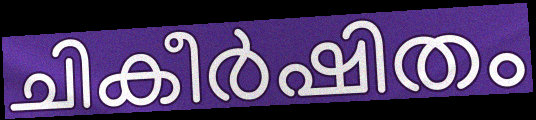
ചികീർഷിതം